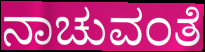
ನಾಚುವಂತೆ